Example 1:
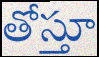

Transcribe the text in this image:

తోస్తూ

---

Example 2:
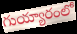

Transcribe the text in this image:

గుయ్యారంలో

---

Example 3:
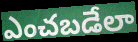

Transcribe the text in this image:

ఎంచబడేలా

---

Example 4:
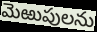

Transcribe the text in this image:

మెఱుపులను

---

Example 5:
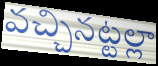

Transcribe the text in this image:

వచ్చినట్టల్లా